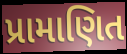
પ્રામાણિત